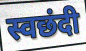
स्वछंदी